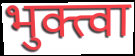
भुक्त्वा